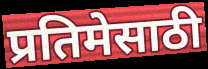
प्रतिमेसाठी